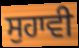
ਸੁਹਾਵੀ